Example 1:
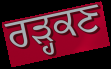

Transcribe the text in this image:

ਰੜ੍ਹਕਣ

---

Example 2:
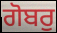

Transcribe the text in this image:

ਗੋਬਰੁ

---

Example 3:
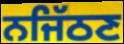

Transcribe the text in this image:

ਨਜਿੱਠਣ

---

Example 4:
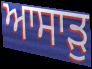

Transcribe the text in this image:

ਆਸਾੜੁ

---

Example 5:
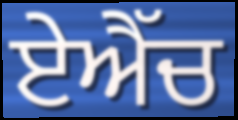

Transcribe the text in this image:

ਏਐੱਚ